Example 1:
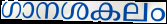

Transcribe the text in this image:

ഗാനശകലം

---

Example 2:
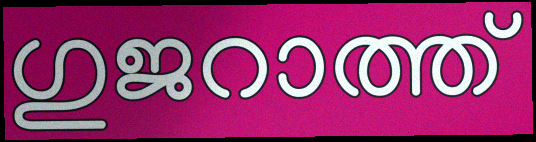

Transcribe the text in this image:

ഗുജറാത്ത്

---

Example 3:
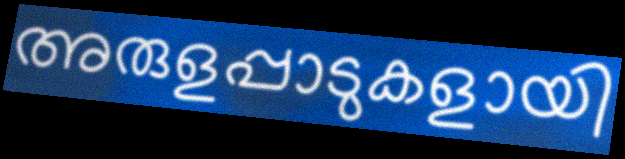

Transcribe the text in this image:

അരുളപ്പാടുകളായി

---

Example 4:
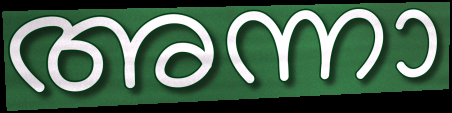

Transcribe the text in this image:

അന്നാ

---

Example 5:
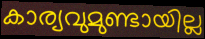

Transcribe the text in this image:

കാര്യവുമുണ്ടായില്ല